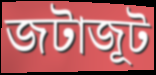
জটাজূট